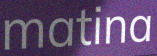
matina